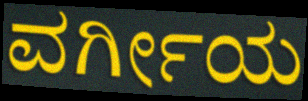
ವರ್ಗೀಯ